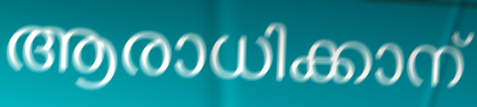
ആരാധിക്കാന്